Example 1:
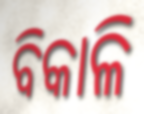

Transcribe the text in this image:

ବିକାଳି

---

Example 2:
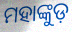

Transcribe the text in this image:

ମହାଙ୍କୁଡ଼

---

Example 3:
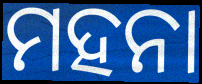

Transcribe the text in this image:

ମହନା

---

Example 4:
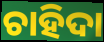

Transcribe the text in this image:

ଚାହିଦା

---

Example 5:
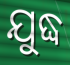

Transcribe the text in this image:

ଯୁଦ୍ଧ